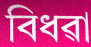
বিধৱা